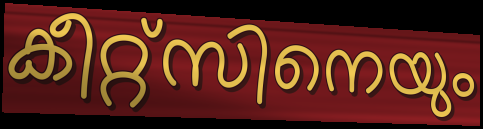
കീറ്റ്സിനെയും